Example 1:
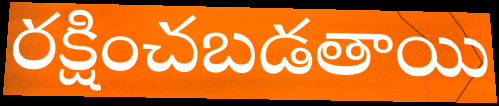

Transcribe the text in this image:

రక్షించబడతాయి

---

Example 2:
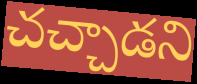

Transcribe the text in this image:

చచ్చాడని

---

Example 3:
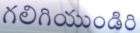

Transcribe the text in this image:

గలిగియుండిరి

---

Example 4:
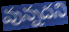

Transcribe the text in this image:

వున్నదని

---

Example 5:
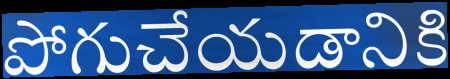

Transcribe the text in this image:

పోగుచేయడానికి